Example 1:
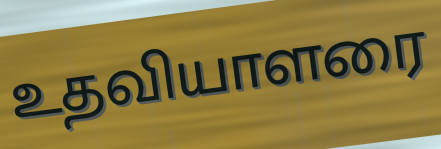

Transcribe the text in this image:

உதவியாளரை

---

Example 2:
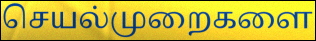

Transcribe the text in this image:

செயல்முறைகளை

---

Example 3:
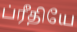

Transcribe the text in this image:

ப்ரீதியே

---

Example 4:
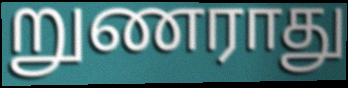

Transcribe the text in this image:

றுணராது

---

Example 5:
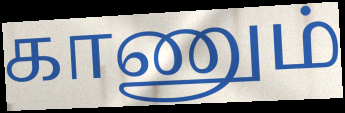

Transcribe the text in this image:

காணும்